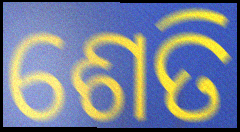
ଶେତି